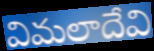
విమలాదేవి